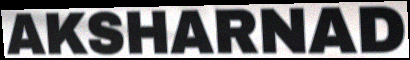
AKSHARNAD